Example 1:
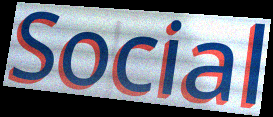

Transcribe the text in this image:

Social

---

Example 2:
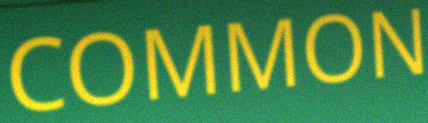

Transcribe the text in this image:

COMMON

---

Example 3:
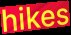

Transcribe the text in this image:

hikes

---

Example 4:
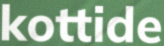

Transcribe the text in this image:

kottide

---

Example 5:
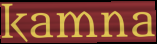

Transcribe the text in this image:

kamna